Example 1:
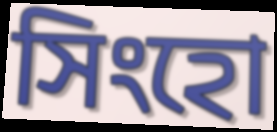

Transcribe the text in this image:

সিংহো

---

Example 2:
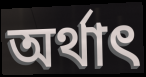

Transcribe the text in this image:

অর্থাৎ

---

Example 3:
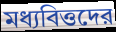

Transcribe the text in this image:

মধ্যবিত্তদের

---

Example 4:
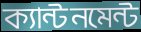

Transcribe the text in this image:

ক্যান্টনমেন্ট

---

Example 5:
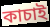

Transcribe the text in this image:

কাচাই